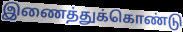
இணைத்துக்கொண்டு